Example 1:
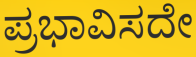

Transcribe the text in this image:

ಪ್ರಭಾವಿಸದೇ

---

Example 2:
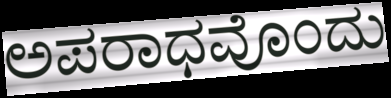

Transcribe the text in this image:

ಅಪರಾಧವೊಂದು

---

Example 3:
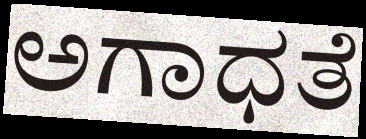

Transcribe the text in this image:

ಅಗಾಧತೆ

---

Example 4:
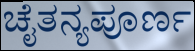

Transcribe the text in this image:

ಚೈತನ್ಯಪೂರ್ಣ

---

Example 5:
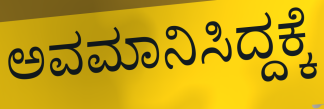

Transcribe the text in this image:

ಅವಮಾನಿಸಿದ್ದಕ್ಕೆ